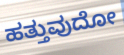
ಹತ್ತುವುದೋ